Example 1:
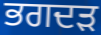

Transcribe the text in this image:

ਭਗਦੜ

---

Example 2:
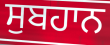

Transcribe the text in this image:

ਸੁਬਹਾਨ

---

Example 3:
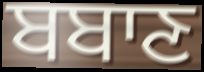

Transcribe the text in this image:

ਬਬਾਣ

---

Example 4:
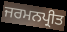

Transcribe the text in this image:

ਜਰਮਨਪ੍ਰੀਤ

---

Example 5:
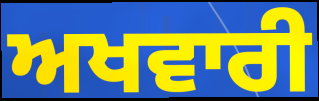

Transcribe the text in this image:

ਅਖਵਾਰੀ